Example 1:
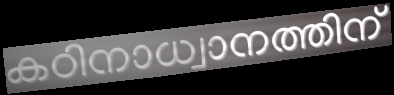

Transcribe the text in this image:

കഠിനാധ്വാനത്തിന്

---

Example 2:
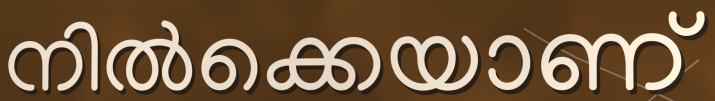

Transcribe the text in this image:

നിൽക്കെയാണ്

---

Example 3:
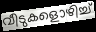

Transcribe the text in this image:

വീടുകളൊഴിച്ച്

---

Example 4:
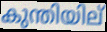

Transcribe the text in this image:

കുന്തിയില്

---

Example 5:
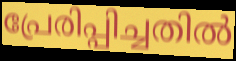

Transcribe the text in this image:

പ്രേരിപ്പിച്ചതിൽ